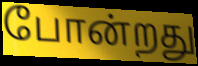
போன்றது